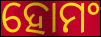
ହୋମଂ